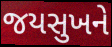
જયસુખને